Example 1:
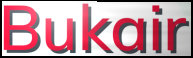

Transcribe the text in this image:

Bukair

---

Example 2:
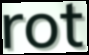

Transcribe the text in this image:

rot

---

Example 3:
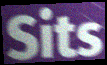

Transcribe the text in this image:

Sits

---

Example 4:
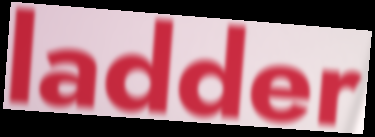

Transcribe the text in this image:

ladder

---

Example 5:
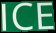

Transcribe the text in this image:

ICE